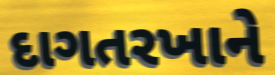
દાગતરખાને